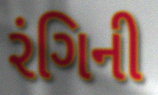
રંગિની